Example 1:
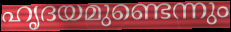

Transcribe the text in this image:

ഹൃദയമുണ്ടെന്നും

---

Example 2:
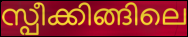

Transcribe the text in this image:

സ്പീക്കിങ്ങിലെ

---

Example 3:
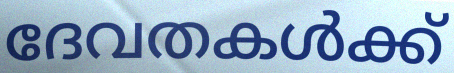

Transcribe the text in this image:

ദേവതകൾക്ക്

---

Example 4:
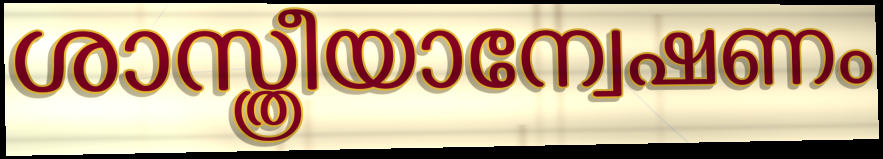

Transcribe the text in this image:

ശാസ്ത്രീയാന്വേഷണം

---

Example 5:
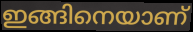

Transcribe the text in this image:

ഇങ്ങിനെയാണ്